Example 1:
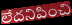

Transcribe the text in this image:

లేదనిపించి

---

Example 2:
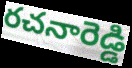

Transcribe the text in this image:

రచనారెడ్డి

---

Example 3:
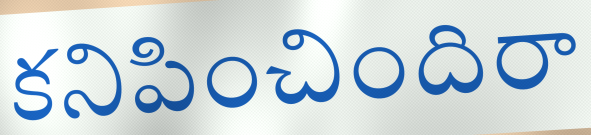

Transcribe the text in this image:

కనిపించిందిరా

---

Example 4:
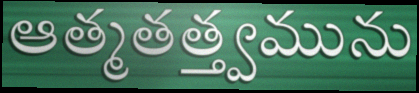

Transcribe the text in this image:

ఆత్మతత్త్వమును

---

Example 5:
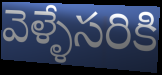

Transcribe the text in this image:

వెళ్ళేసరికి